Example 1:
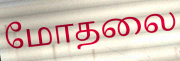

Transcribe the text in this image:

மோதலை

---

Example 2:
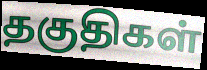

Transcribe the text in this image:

தகுதிகள்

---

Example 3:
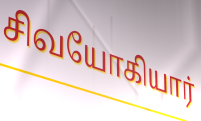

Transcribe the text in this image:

சிவயோகியார்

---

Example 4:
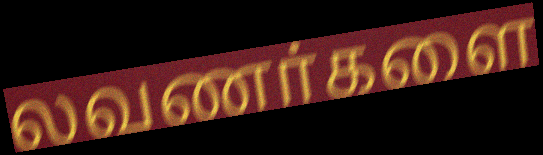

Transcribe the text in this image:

லவணர்களை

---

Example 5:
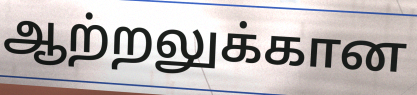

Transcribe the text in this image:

ஆற்றலுக்கான